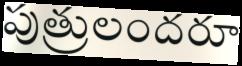
పుత్రులందరూ